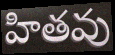
హితవు